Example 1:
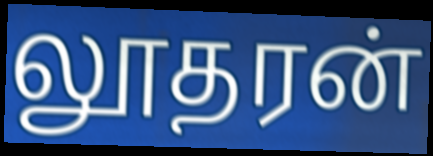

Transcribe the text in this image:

லூதரன்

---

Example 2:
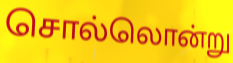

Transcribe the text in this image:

சொல்லொன்று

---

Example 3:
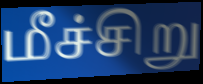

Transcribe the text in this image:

மீச்சிறு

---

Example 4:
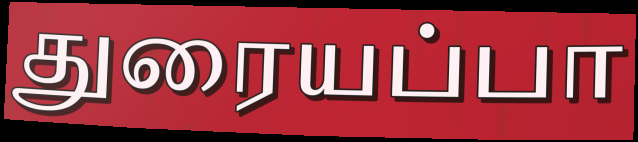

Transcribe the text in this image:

துரையப்பா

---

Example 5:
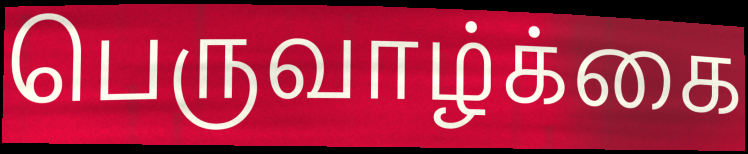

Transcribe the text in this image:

பெருவாழ்க்கை